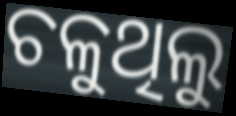
ଚଳୁଥିଲୁ